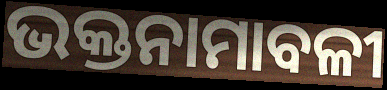
ଭକ୍ତନାମାବଳୀ